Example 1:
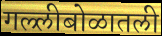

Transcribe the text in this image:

गल्लीबोळातली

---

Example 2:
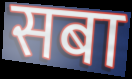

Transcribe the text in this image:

सबा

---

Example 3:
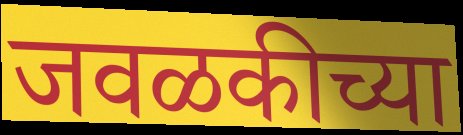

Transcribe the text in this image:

जवळकीच्या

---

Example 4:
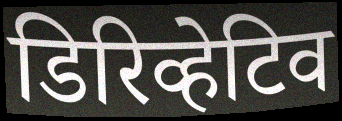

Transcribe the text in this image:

डिरिव्हेटिव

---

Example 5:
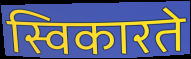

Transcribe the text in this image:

स्विकारते